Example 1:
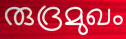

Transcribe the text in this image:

രുദ്രമുഖം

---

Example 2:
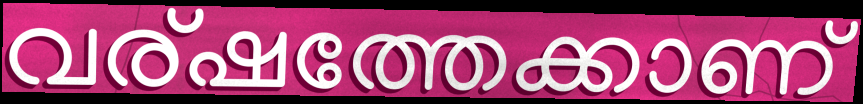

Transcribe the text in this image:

വര്ഷത്തേക്കാണ്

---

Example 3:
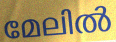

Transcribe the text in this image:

മേലിൽ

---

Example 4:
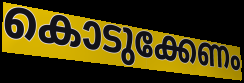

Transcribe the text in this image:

കൊടുക്കേണം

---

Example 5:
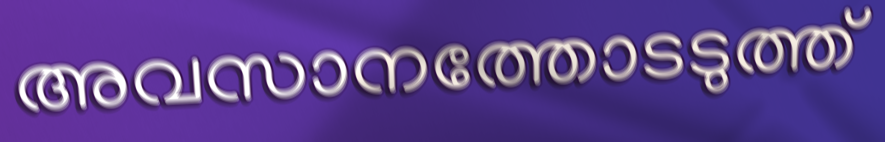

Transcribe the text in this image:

അവസാനത്തോടടുത്ത്